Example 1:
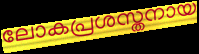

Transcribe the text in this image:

ലോകപ്രശസ്തനായ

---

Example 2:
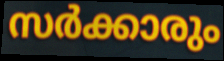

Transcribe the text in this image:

സർക്കാരും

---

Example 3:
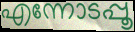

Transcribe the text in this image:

എന്നോടപ്പൂ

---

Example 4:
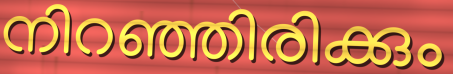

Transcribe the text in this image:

നിറഞ്ഞിരിക്കും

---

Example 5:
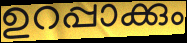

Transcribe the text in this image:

ഉറപ്പാക്കും